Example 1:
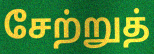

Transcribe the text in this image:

சேற்றுத்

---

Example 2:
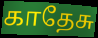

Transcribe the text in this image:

காதேசு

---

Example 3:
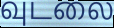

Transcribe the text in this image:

வுடலை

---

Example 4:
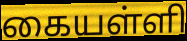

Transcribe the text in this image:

கையள்ளி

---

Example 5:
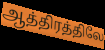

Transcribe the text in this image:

ஆத்திரத்திலே